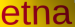
etna